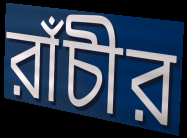
রাঁচীর